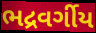
ભદ્રવર્ગીય